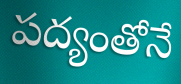
పద్యంతోనే